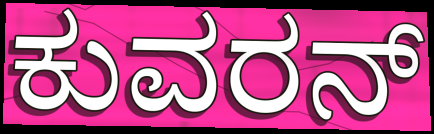
ಕುವರನ್